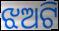
ଝଅଟି